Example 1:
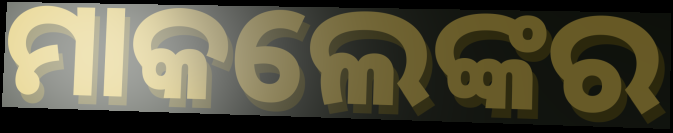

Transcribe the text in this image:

ମାକଲେଙ୍କର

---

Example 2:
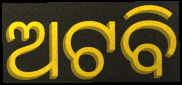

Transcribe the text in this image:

ଅଟବି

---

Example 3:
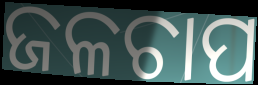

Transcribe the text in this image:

ଜଳଚାପ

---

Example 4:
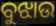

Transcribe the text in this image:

ବୁଝାଉ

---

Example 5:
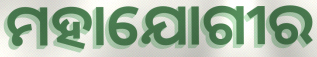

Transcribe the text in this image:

ମହାଯୋଗୀର